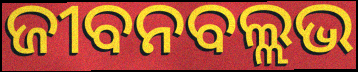
ଜୀବନବଲ୍ଲଭ